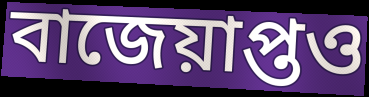
বাজেয়াপ্তও